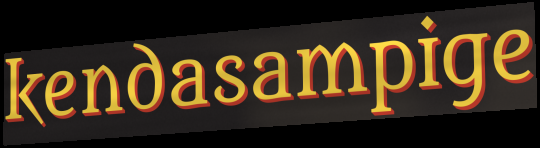
kendasampige